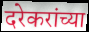
दरेकरांच्या